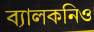
ব্যালকনিও